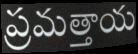
ప్రమత్తాయ